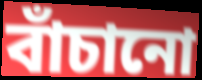
বাঁচানো